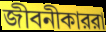
জীবনীকাররা